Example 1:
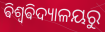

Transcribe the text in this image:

ଵିଶ୍ୱଵିଦ୍ୟାଳୟରୁ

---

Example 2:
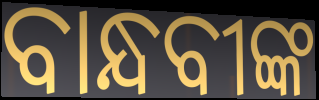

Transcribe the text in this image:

ବାନ୍ଧବୀଙ୍କ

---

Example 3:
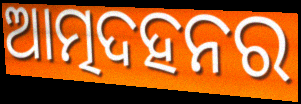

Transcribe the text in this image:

ଆତ୍ମଦହନର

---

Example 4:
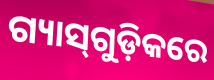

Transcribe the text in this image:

ଗ୍ୟାସ୍‌ଗୁଡ଼ିକରେ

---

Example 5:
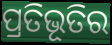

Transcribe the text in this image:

ପ୍ରତିଭୂତିର